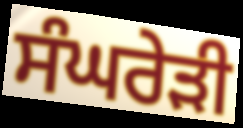
ਸੰਘਰੇੜੀ